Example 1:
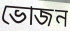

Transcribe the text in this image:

ভোজন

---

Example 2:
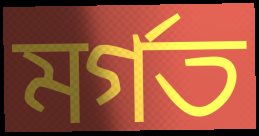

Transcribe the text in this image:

মৰ্গত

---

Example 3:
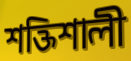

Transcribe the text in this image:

শক্তিশালী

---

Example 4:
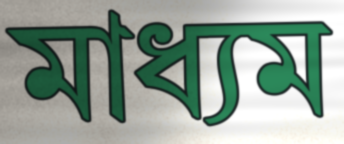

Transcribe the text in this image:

মাধ্যম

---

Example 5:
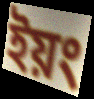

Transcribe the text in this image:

ইয়ং